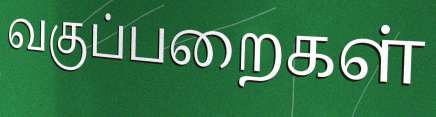
வகுப்பறைகள்